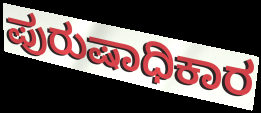
ಪುರುಷಾಧಿಕಾರ